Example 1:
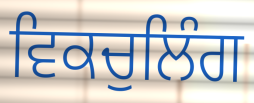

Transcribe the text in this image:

ਵਿਕਚੁਲਿੰਗ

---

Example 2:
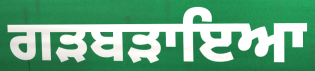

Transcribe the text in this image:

ਗੜਬੜਾਇਆ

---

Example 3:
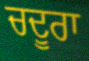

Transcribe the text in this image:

ਚਦੂਰਾ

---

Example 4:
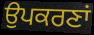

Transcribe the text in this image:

ਉਪਕਰਣਾਂ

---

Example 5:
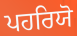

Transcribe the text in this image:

ਪਹਰਿਯੋ